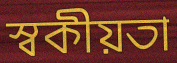
স্বকীয়তা